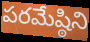
పరమేష్ఠిని